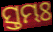
ସ୍ତମ୍ଭଃ